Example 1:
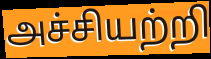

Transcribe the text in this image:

அச்சியற்றி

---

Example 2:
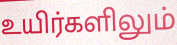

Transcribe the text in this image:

உயிர்களிலும்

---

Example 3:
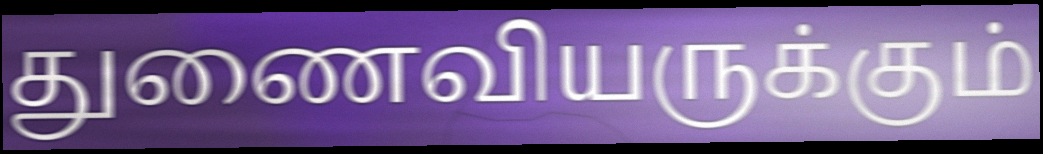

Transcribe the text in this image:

துணைவியருக்கும்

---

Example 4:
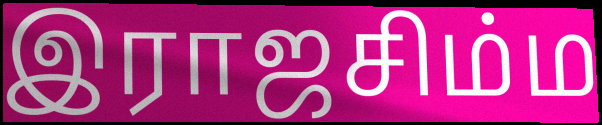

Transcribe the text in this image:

இராஜசிம்ம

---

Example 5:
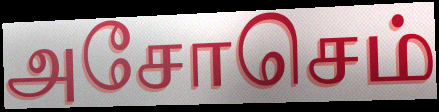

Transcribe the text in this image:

அசோசெம்